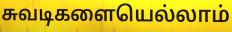
சுவடிகளையெல்லாம்